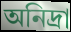
অনিদ্রা